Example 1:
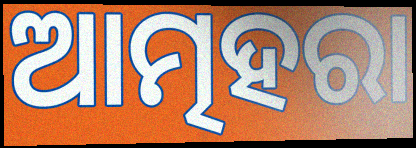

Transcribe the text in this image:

ଆତ୍ମହରା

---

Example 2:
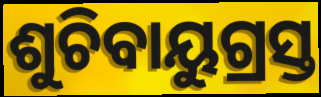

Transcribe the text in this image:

ଶୁଚିବାୟୁଗ୍ରସ୍ତ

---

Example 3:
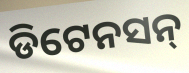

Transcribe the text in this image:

ଡିଟେନସନ୍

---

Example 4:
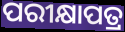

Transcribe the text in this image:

ପରୀକ୍ଷାପତ୍ର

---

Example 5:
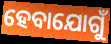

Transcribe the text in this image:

ହେବାଯୋଗୁଁ